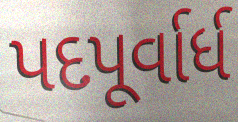
પદપૂર્વાર્ધ